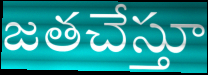
జతచేస్తూ